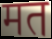
मत